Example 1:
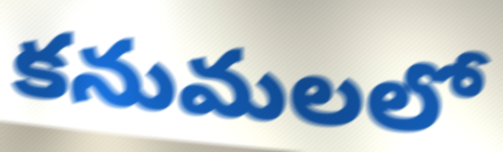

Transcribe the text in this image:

కనుమలలో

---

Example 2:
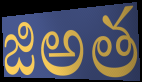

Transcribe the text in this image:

జిఅత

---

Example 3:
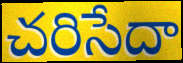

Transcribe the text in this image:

చరిసేదా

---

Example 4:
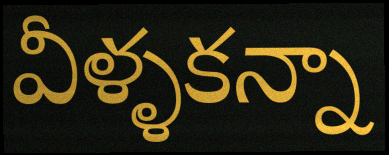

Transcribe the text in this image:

వీళ్ళకన్నా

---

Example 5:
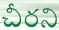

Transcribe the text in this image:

చీరని